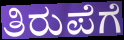
ತಿರುಪೆಗೆ